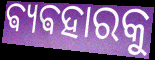
ଵ୍ୟଵହାରକୁ